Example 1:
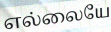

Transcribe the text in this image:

எல்லையே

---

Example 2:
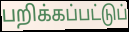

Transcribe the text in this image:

பறிக்கப்பட்டுப்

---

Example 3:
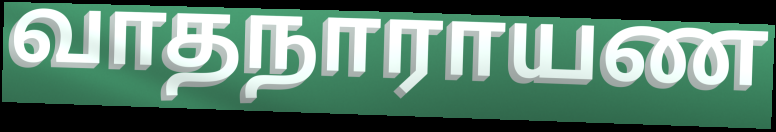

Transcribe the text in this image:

வாதநாராயண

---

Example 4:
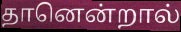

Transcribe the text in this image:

தானென்றால்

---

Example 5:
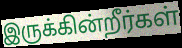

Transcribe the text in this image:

இருக்கின்றீர்கள்